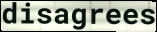
disagrees